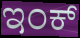
ಇಂಕ್